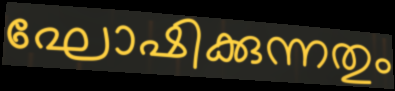
ഘോഷിക്കുന്നതും